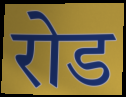
रोड